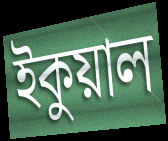
ইকুয়াল